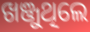
ଖଞ୍ଜୁଥିଲେ